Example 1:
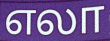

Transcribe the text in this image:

எலா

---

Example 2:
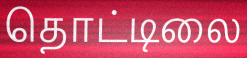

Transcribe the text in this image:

தொட்டிலை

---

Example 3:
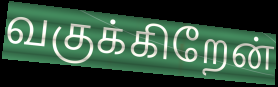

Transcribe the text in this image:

வகுக்கிறேன்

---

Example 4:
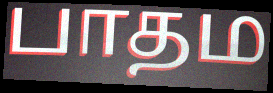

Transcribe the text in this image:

பாதம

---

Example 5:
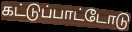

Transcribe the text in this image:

கட்டுப்பாட்டோடு